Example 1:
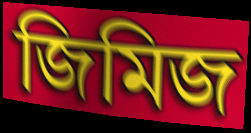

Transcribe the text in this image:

জিমিজ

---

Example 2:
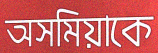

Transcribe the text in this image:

অসমিয়াকে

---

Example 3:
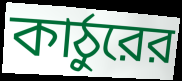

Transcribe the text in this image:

কাঠুরের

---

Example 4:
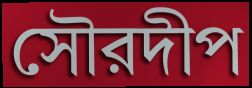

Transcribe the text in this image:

সৌরদীপ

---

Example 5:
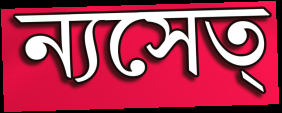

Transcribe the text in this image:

ন্যসেত্